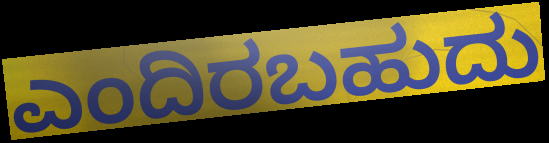
ಎಂದಿರಬಹುದು